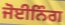
ਜੋਈਨਿੰਗ